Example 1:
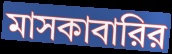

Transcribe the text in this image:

মাসকাবারির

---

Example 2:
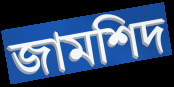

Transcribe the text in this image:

জামশিদ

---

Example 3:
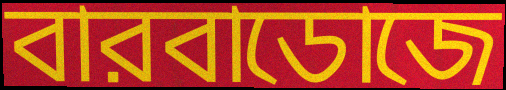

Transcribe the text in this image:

বারবাডোজে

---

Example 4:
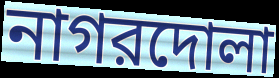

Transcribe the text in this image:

নাগরদোলা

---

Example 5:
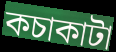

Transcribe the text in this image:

কচাকাটা